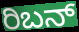
ರಿಬನ್